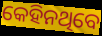
କେହିନଥିବେ